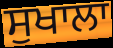
ਸੁਖਾਲਾ